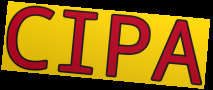
CIPA